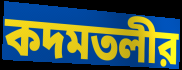
কদমতলীর